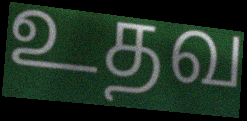
உதவ